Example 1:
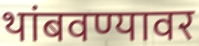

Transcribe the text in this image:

थांबवण्यावर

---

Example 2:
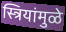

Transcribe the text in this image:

स्त्रियांमुळे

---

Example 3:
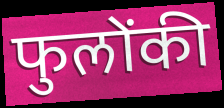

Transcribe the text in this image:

फुलोंकी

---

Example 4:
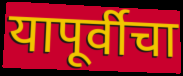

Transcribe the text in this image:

यापूर्वीचा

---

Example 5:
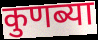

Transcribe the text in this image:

कुणब्या